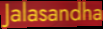
Jalasandha